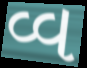
વ્વ